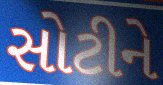
સોટીને